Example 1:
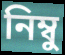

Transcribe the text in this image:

নিম্বু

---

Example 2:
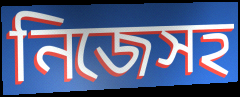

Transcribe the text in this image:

নিজেসহ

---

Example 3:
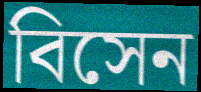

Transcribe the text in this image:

বিসেন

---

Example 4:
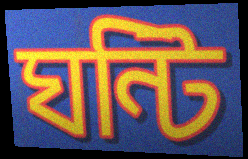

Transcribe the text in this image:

ঘন্টি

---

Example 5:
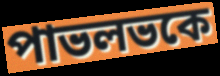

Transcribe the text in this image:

পাভলভকে